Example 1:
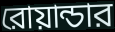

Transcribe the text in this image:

রোয়ান্ডার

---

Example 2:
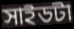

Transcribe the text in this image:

সাইডটা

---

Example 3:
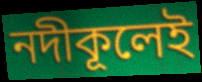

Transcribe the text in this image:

নদীকূলেই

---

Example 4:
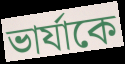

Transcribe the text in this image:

ভার্যাকে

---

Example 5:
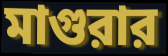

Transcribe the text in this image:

মাগুরার